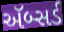
ઍબ્સર્ડ